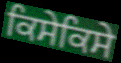
ਕਿਸੇਕਿਸੇ